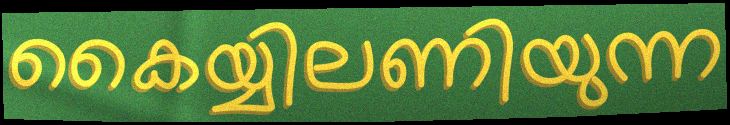
കൈയ്യിലണിയുന്ന